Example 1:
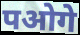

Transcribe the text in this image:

पओगे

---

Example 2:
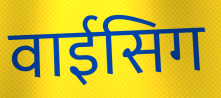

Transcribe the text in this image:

वाईसिग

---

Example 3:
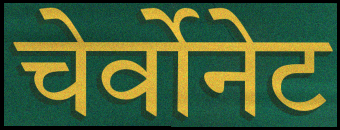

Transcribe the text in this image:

चेर्वोनेट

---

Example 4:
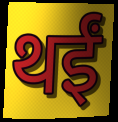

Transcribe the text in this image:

थईं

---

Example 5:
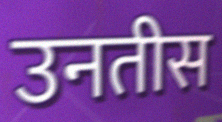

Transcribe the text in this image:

उनतीस